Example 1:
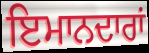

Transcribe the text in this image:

ਇਮਾਨਦਾਰਾਂ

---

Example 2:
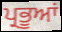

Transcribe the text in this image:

ਪ੍ਰਭੂਆਂ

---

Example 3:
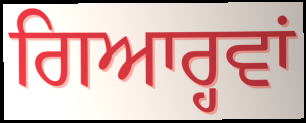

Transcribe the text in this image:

ਗਿਆਰ੍ਹਵਾਂ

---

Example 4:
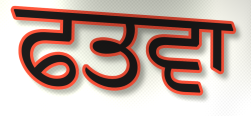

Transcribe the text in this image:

ਫਤਵਾ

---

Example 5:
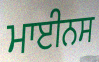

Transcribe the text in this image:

ਮਾਈਨਸ